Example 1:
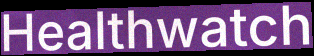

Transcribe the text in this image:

Healthwatch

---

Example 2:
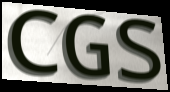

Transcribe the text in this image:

CGS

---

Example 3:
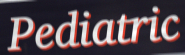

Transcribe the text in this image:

Pediatric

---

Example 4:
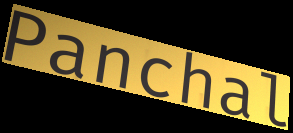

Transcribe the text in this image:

Panchal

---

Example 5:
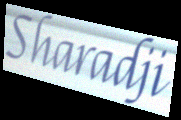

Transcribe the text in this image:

Sharadji